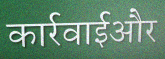
कार्रवाईऔर